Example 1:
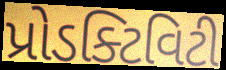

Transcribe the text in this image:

પ્રોડક્ટિવિટી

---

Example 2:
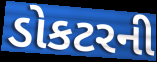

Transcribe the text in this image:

ડોકટરની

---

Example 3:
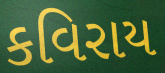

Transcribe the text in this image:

કવિરાય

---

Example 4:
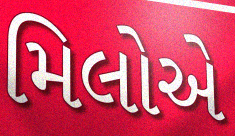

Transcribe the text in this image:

મિલોએ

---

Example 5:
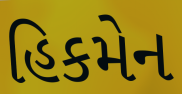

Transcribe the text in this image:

હિકમેન